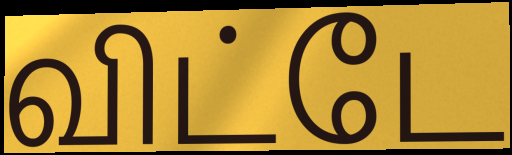
விட்டே